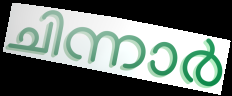
ചിന്നാർ